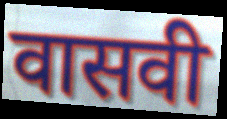
वासवी